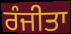
ਰੰਜੀਤਾ